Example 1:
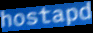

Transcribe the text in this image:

hostapd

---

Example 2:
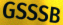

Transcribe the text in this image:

GSSSB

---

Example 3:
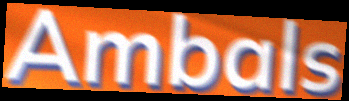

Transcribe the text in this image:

Ambals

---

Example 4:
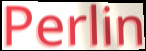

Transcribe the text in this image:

Perlin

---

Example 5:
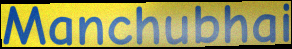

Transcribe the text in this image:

Manchubhai